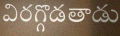
విరగ్గొడతాడు